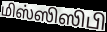
மிஸ்ஸிஸிபி